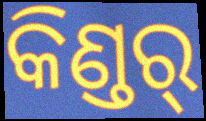
କିଣ୍ଡର୍